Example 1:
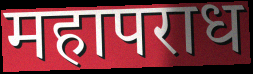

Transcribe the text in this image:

महापराध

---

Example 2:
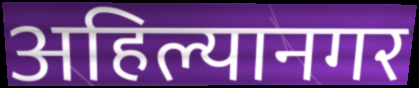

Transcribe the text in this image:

अहिल्यानगर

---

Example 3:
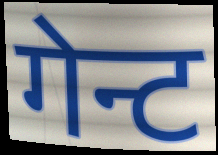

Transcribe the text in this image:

गेन्ट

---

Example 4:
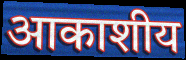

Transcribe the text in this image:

आकाशीय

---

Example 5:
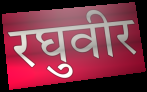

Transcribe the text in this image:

रघुवीर